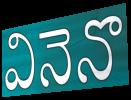
వినెనొ